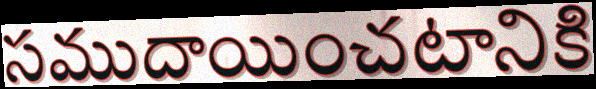
సముదాయించటానికి